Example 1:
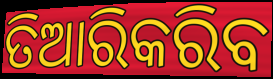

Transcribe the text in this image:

ତିଆରିକରିବ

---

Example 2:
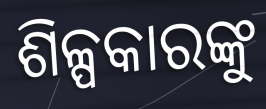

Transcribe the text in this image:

ଶିଳ୍ପକାରଙ୍କୁ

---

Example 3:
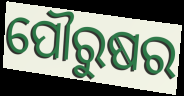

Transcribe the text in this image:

ପୌରୁଷର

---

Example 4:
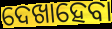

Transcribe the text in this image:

ଦେଖାହେବା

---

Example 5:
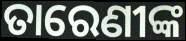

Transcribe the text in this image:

ତାରେଣୀଙ୍କ